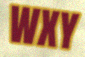
WXY